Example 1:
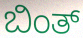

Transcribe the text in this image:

ಬಿಂತ್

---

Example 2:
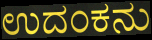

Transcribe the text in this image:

ಉದಂಕನು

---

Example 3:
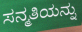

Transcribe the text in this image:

ಸನ್ಮತಿಯನ್ನು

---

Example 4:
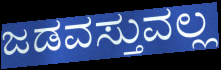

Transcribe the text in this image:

ಜಡವಸ್ತುವಲ್ಲ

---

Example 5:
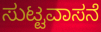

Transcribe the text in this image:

ಸುಟ್ಟವಾಸನೆ